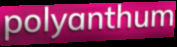
polyanthum